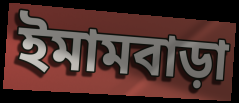
ইমামবাড়া